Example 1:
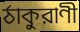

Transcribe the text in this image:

ঠাকুরাণী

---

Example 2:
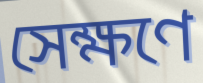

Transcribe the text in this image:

সেক্ষণে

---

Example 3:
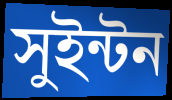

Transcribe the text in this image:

সুইন্টন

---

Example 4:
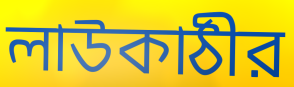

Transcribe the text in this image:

লাউকাঠীর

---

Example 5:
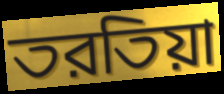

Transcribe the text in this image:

তরতিয়া